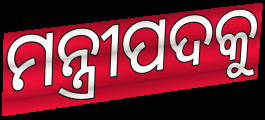
ମନ୍ତ୍ରୀପଦକୁ